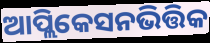
ଆପ୍ଲିକେସନଭିତ୍ତିକ